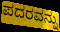
ಪದರವನ್ನು